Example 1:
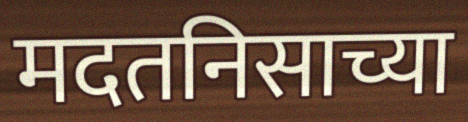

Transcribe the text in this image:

मदतनिसाच्या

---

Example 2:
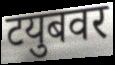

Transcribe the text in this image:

टयुबवर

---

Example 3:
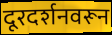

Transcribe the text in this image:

दूरदर्शनवरून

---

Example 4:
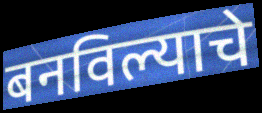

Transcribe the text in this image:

बनविल्याचे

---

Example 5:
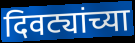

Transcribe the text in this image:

दिवट्यांच्या